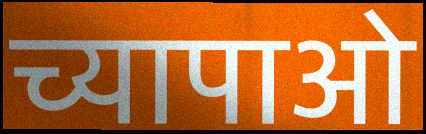
च्यापाओ